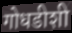
गोधडीशी